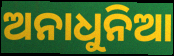
ଅନାଧୁନିଆ